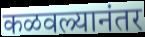
कळवल्यानंतर